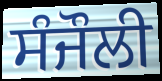
ਸੰਜੌਲੀ